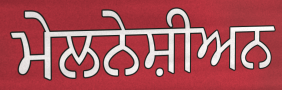
ਮੇਲਨੇਸ਼ੀਅਨ